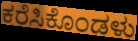
ಕರೆಸಿಕೊಂಡಳು